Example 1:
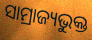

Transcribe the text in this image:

ସାମ୍ରାଜ୍ୟଭୁକ୍ତ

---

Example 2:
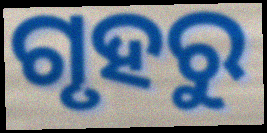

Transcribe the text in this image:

ଗୃହରୁ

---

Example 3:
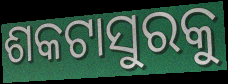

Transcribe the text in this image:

ଶକଟାସୁରକୁ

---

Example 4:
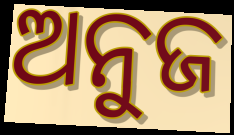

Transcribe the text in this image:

ଅନୁଜ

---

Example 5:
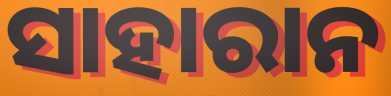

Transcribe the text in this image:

ସାହାରାନ